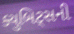
ક્યુબિટ્સની